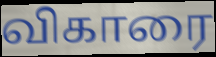
விகாரை